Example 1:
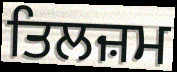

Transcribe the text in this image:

ਤਿਲਜ਼ਮ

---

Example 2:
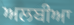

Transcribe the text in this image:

ਅਲਬੀਆ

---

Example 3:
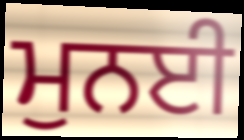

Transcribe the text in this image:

ਮੁਨਈ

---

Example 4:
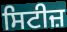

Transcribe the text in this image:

ਸਿਟੀਜ਼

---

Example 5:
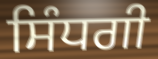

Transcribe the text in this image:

ਸਿੰਧਗੀ